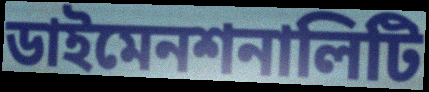
ডাইমেনশনালিটি